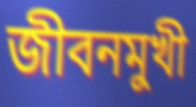
জীবনমুখী